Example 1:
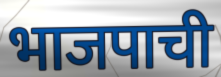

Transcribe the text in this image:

भाजपाची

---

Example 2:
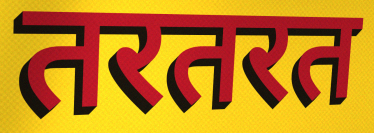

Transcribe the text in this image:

तरतरत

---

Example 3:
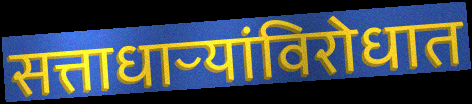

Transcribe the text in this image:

सत्ताधाऱ्यांविरोधात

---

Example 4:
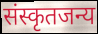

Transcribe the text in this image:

संस्कृतजन्य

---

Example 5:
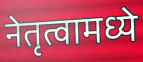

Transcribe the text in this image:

नेतृत्वामध्ये